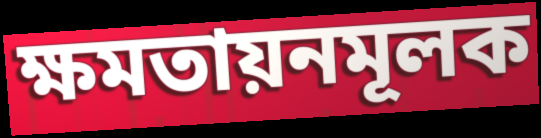
ক্ষমতায়নমূলক